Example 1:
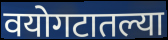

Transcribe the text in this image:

वयोगटातल्या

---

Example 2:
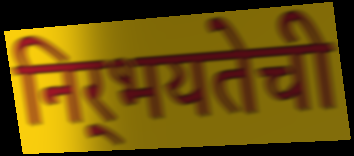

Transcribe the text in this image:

निर्भयतेची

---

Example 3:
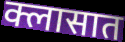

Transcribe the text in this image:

क्लासात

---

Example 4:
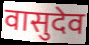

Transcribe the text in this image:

वासुदेव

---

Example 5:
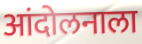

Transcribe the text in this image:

आंदोलनाला